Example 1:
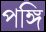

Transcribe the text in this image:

পঙ্গি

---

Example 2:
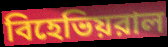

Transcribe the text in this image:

বিহেভিয়রাল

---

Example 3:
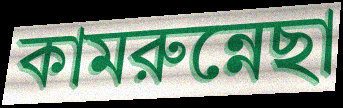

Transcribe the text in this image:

কামরুন্নেছা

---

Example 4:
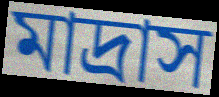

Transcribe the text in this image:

মাদ্রাস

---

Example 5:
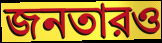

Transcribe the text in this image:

জনতারও